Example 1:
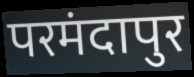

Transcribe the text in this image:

परमंदापुर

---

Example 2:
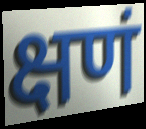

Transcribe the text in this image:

क्षणं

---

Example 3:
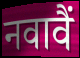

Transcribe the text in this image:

नवावैं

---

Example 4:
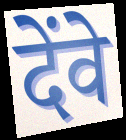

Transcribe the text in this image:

देंवे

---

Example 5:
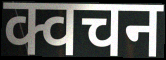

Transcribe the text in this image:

क्वचन